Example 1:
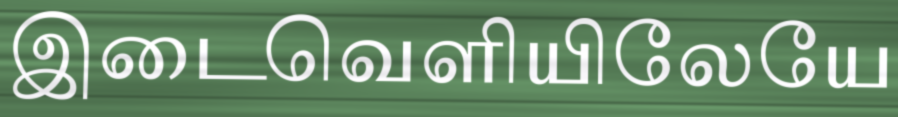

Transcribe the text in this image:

இடைவெளியிலேயே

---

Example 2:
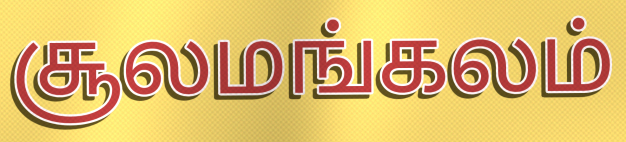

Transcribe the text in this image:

சூலமங்கலம்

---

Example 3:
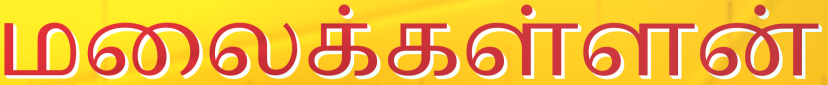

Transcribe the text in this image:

மலைக்கள்ளன்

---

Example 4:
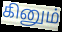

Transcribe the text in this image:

கினும்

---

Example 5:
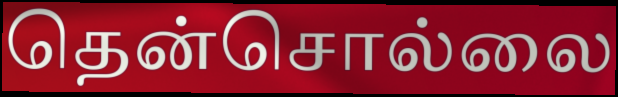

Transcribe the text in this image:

தென்சொல்லை